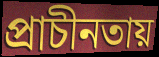
প্রাচীনতায়